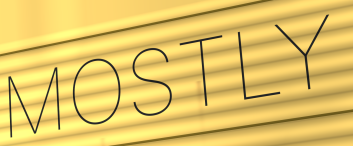
MOSTLY